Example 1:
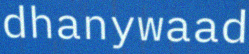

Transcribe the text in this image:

dhanywaad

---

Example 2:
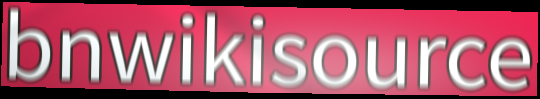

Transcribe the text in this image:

bnwikisource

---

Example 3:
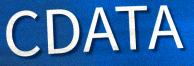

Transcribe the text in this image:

CDATA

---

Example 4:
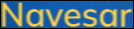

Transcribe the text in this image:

Navesar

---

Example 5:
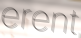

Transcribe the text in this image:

erent